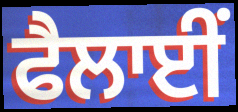
ਫੈਲਾਈਂ